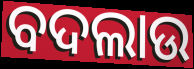
ବଦଲାଉ